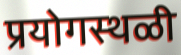
प्रयोगस्थळी